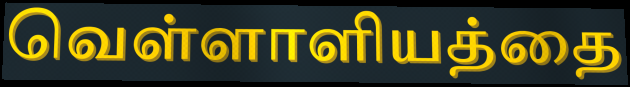
வெள்ளாளியத்தை